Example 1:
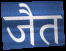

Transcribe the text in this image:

जैत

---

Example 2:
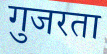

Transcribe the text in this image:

गुजरता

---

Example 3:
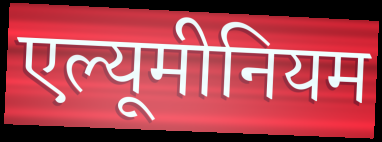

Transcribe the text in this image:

एल्यूमीनियम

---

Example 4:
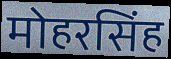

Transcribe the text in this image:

मोहरसिंह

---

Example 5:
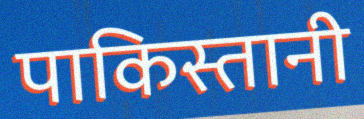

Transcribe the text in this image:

पाकिस्तानी